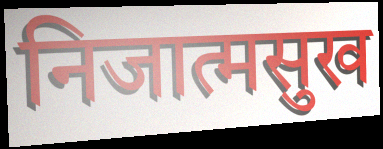
निजात्मसुख